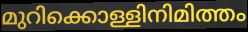
മുറിക്കൊള്ളിനിമിത്തം